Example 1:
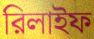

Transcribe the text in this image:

রিলাইফ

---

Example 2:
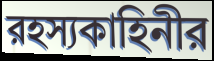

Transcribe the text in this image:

রহস্যকাহিনীর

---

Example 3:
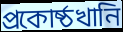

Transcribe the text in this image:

প্রকোষ্ঠখানি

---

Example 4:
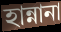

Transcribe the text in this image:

হান্নানা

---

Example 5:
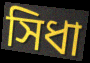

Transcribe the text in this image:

সিধা